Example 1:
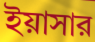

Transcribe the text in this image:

ইয়াসার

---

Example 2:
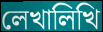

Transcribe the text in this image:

লেখালিখি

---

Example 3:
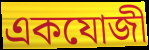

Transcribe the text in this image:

একযোজী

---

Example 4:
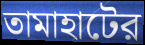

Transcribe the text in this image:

তামাহাটের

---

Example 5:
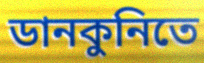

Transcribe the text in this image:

ডানকুনিতে